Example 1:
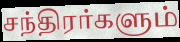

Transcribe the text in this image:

சந்திரர்களும்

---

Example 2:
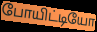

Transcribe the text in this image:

போயிட்டியோ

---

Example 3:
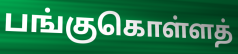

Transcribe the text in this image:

பங்குகொள்ளத்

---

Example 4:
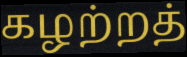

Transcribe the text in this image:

கழற்றத்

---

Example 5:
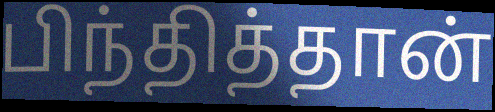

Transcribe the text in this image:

பிந்தித்தான்